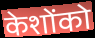
केशोंको